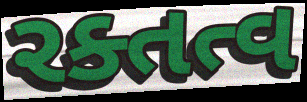
રક્તત્વ